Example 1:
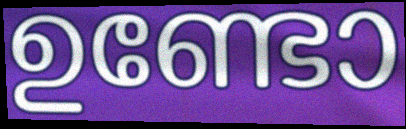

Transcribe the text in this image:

ഉണ്ടോ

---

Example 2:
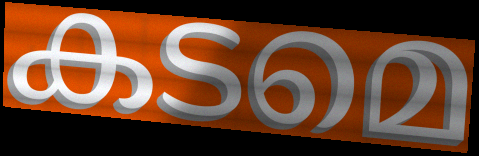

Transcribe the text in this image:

കടമെ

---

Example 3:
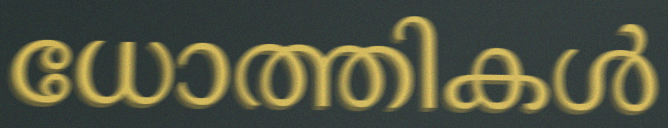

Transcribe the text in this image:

ധോത്തികൾ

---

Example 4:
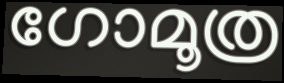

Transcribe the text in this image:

ഗോമൂത്ര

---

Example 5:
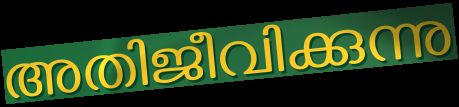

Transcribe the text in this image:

അതിജീവിക്കുന്നു